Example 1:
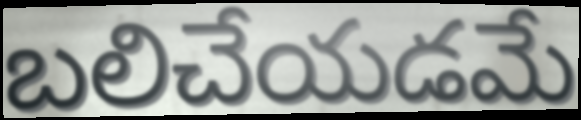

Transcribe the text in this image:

బలిచేయడమే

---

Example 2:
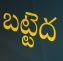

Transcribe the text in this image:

బట్టెద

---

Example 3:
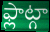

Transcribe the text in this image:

ఫ్లాట్గా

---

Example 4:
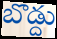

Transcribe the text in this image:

బొడ్దు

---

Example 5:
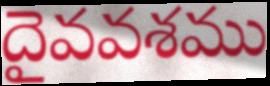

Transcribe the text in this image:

దైవవశము